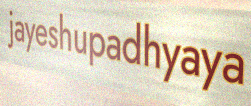
jayeshupadhyaya